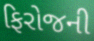
ફિરોજની